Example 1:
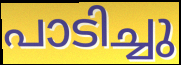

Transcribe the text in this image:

പാടിച്ചു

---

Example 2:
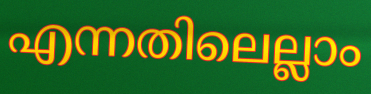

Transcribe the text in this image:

എന്നതിലെല്ലാം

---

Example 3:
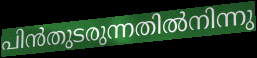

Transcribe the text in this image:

പിൻതുടരുന്നതിൽനിന്നു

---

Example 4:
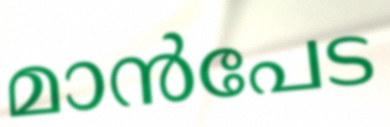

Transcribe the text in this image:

മാൻപേട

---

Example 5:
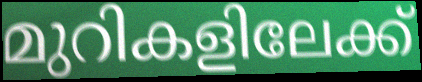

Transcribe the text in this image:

മുറികളിലേക്ക്